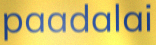
paadalai